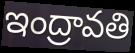
ఇంద్రావతి